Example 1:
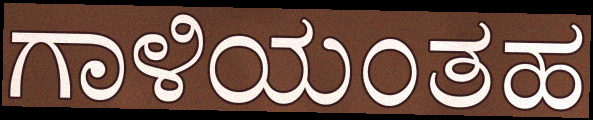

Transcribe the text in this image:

ಗಾಳಿಯಂತಹ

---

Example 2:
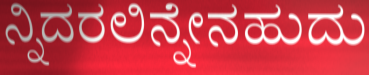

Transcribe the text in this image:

ನ್ನಿದರಲಿನ್ನೇನಹುದು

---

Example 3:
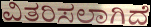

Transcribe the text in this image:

ವಿತರಿಸಲಾಗಿದೆ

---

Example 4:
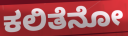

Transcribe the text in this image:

ಕಲಿತೆನೋ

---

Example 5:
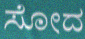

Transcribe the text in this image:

ಸೋದ